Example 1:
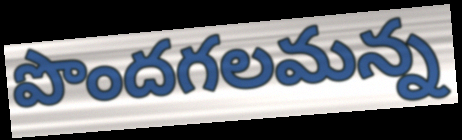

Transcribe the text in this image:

పొందగలమన్న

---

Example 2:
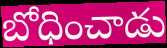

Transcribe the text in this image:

బోధించాడు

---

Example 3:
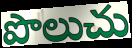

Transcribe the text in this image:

పొలుచు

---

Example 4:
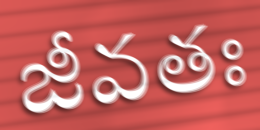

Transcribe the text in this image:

జీవతః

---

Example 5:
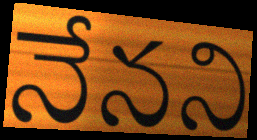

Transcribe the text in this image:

నేనని